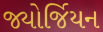
જ્યોર્જિયન